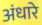
अंधारे